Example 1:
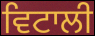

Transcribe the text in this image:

ਵਿਟਾਲੀ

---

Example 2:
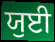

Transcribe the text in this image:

ਯੁਈ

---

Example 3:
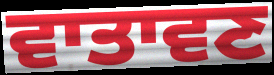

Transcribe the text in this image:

ਵਾਤਾਵਣ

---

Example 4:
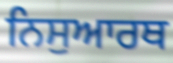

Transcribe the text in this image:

ਨਿਸੁਆਰਥ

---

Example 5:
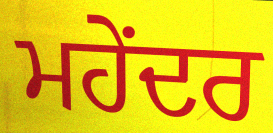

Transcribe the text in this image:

ਮਹੇਂਦਰ